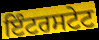
ਇੰਟਰਸਟੇਟ